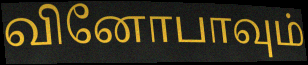
வினோபாவும்